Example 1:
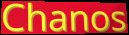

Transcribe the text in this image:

Chanos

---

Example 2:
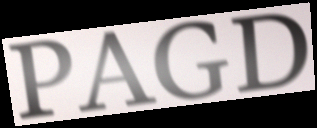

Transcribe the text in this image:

PAGD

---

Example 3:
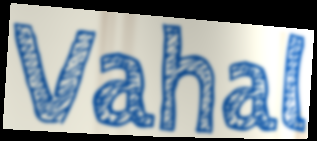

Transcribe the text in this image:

Vahal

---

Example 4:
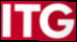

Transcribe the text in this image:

ITG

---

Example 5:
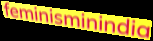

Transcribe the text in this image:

feminisminindia